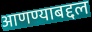
आणण्याबद्दल